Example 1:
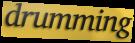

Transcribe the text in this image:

drumming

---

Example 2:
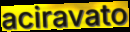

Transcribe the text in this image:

aciravato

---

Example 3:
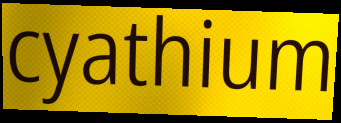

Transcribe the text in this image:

cyathium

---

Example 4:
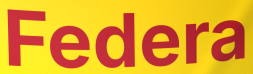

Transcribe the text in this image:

Federa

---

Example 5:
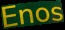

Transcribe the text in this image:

Enos